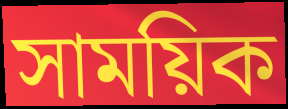
সাময়িক